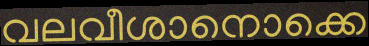
വലവീശാനൊക്കെ